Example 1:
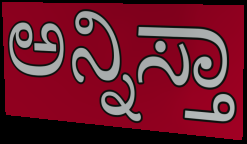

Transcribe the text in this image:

ಅನ್ನಿಸ್ತಾ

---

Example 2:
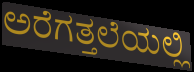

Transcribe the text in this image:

ಅರೆಗತ್ತಲೆಯಲ್ಲಿ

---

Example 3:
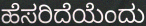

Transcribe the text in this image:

ಹೆಸರಿದೆಯೆಂದು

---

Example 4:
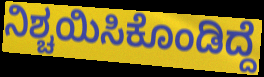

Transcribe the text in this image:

ನಿಶ್ಚಯಿಸಿಕೊಂಡಿದ್ದೆ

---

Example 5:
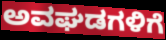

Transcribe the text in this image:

ಅವಘಡಗಳಿಗೆ